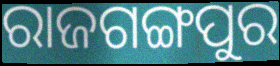
ରାଜଗଙ୍ଗପୁର